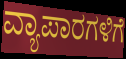
ವ್ಯಾಪಾರಗಳಿಗೆ